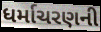
ધર્માચરણની